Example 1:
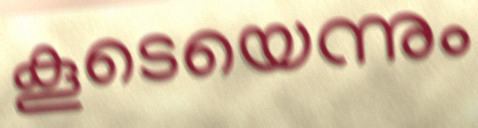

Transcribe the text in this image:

കൂടെയെന്നും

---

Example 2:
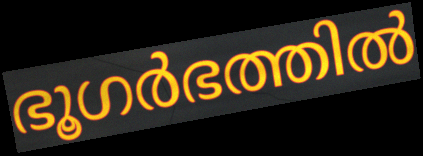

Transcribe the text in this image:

ഭൂഗർഭത്തിൽ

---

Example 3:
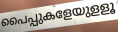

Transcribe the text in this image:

പൈപ്പുകളേയുളളൂ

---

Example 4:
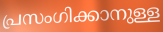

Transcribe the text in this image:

പ്രസംഗിക്കാനുള്ള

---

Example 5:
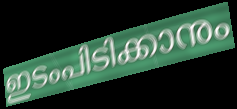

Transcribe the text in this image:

ഇടംപിടിക്കാനും